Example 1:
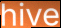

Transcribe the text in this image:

hive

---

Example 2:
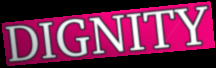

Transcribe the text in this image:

DIGNITY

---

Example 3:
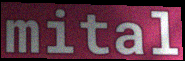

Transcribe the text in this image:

mital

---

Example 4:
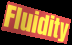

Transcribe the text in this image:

Fluidity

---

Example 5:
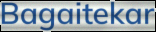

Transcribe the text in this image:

Bagaitekar